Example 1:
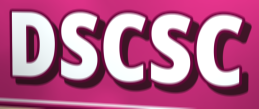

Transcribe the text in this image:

DSCSC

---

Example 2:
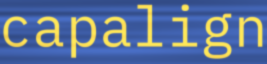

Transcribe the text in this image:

capalign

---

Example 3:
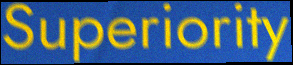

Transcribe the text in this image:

Superiority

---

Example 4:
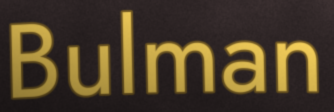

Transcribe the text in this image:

Bulman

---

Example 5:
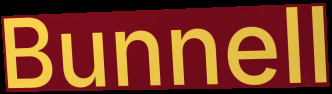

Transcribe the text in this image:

Bunnell